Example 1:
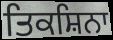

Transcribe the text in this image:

ਤਿਕਸ਼ਿਨਾ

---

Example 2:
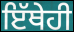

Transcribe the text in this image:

ਇੱਥੇਹੀ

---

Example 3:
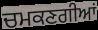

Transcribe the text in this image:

ਚਮਕਣਗੀਆਂ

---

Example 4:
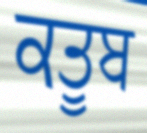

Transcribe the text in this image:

ਕਤੂਬ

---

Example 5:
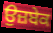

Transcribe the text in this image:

ਉਜ਼ਬੇਕ